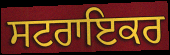
ਸਟਰਾਇਕਰ